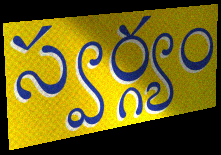
స్వర్గ్యం